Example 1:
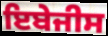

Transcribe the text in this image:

ਇਬੇਜੀਸ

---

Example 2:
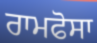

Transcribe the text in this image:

ਰਾਮਫੋਸਾ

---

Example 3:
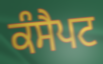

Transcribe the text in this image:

ਕੰਸੈਪਟ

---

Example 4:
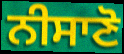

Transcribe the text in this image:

ਨੀਸਾਣੋ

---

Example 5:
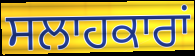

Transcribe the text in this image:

ਸਲਾਹਕਾਰਾਂ